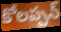
కోలప్పన్